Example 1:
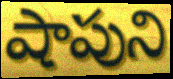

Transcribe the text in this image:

షాపుని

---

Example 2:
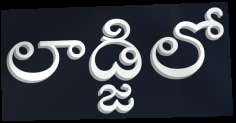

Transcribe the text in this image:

లాడ్జిలో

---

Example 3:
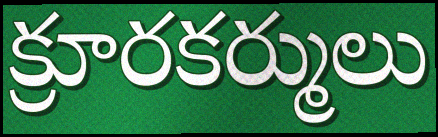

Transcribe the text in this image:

క్రూరకర్ములు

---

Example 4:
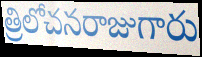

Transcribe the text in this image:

త్రిలోచనరాజుగారు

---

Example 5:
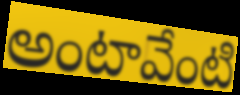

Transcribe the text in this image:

అంటావేంటి